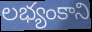
లభ్యంకాని